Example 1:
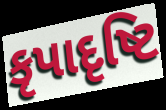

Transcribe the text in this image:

કૃપાદૃષ્ટિ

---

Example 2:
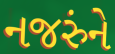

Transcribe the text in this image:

નજરુંને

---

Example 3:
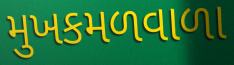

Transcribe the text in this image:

મુખકમળવાળા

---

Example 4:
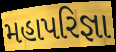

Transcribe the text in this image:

મહાપરિજ્ઞા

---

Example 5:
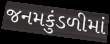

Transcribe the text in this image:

જનમકુંડળીમાં